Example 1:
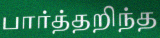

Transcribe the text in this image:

பார்த்தறிந்த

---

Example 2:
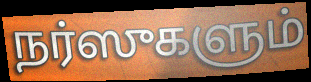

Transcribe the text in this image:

நர்ஸுகளும்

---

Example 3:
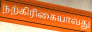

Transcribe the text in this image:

நற்கிரிகையாவது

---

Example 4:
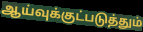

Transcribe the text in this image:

ஆய்வுக்குட்படுத்தும்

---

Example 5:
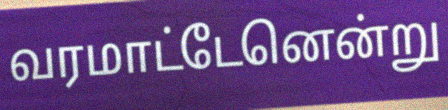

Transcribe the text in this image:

வரமாட்டேனென்று